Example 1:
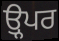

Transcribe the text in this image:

ਉ੍ਨਪਰ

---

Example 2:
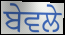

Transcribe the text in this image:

ਬੇਵਲੇ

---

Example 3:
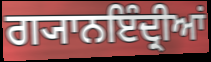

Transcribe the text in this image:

ਗ੍ਯਾਨਇੰਦ੍ਰੀਆਂ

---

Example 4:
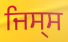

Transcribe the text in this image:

ਜਿਸ੍ਸ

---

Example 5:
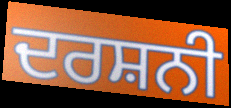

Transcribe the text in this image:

ਦਰਸ਼ਨੀ